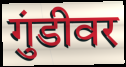
गुंडीवर